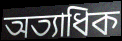
অত্যাধিক